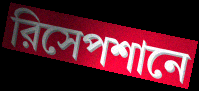
রিসেপশানে